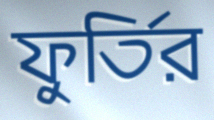
ফুর্তির